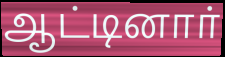
ஆட்டினார்